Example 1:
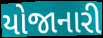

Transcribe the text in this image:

યોજાનારી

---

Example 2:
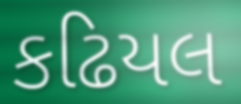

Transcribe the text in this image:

કઢિયલ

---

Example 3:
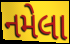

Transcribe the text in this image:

નમેલા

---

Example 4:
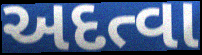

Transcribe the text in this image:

અદત્વા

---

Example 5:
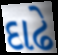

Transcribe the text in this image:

દાઢે